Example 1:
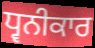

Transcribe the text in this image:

ਧ੍ਵਨੀਕਾਰ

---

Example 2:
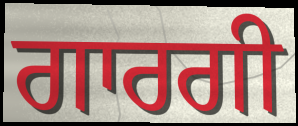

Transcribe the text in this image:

ਗਾਰਗੀ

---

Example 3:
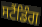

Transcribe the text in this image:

ਸਟੈਂਡਿੰਗ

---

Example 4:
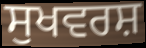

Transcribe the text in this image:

ਸੁਖਵਰਸ਼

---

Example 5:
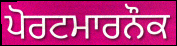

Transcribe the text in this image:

ਪੋਰਟਮਾਰਨੌਕ